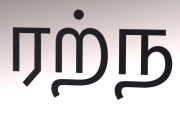
ரற்ந